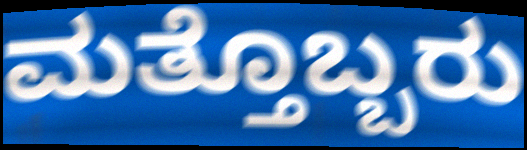
ಮತ್ತೊಬ್ಬರು